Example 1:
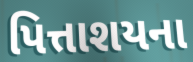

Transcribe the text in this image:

પિત્તાશયના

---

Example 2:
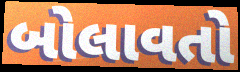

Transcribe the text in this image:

બોલાવતો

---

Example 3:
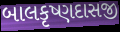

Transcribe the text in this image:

બાલકૃષ્ણદાસજી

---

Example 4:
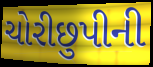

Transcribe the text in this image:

ચોરીછુપીની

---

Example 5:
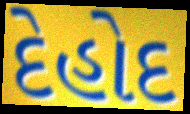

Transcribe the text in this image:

દેહોદ